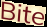
Bite